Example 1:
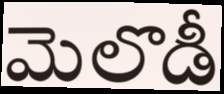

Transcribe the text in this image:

మెలొడీ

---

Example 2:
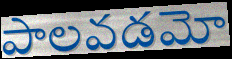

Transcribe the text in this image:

పాలవడమో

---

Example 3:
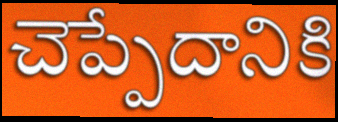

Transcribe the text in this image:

చెప్పేదానికి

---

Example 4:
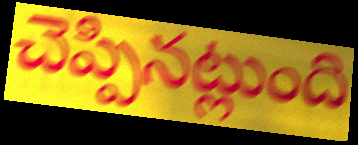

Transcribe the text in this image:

చెప్పినట్లుంది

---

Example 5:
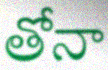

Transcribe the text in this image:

తోనా